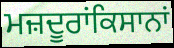
ਮਜ਼ਦੂਰਾਂਕਿਸਾਨਾਂ